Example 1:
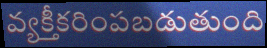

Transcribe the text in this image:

వ్యక్తీకరింపబడుతుంది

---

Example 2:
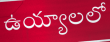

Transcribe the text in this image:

ఉయ్యాలలో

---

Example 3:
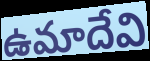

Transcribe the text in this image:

ఉమాదేవి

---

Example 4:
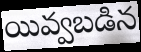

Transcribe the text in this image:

యివ్వబడిన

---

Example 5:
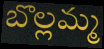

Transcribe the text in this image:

బొల్లమ్మ